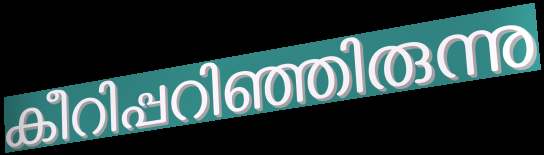
കീറിപ്പറിഞ്ഞിരുന്നു